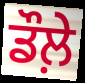
ਡੌਲ਼ੇ